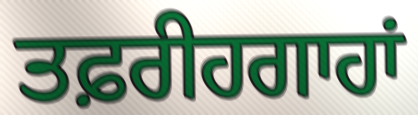
ਤਫ਼ਰੀਹਗਾਹਾਂ